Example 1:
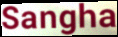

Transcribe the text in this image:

Sangha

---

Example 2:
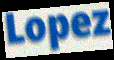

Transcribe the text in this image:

Lopez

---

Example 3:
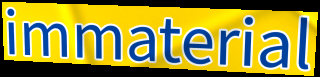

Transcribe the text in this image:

immaterial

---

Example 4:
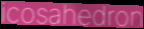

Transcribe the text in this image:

icosahedron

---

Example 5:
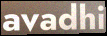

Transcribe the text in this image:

avadhi